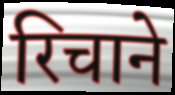
रिचाने